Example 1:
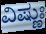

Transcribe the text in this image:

ವಿಷ್ಣುಃ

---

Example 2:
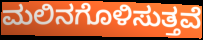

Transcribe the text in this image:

ಮಲಿನಗೊಳಿಸುತ್ತವೆ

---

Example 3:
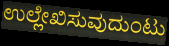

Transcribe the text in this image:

ಉಲ್ಲೇಖಿಸುವುದುಂಟು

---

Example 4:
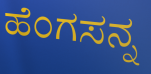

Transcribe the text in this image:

ಹೆಂಗಸನ್ನ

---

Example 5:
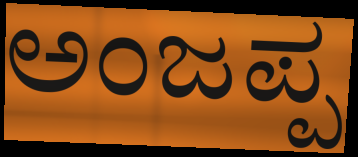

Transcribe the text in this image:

ಅಂಜಪ್ಪ